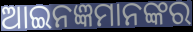
ଆଇନଜ୍ଞମାନଙ୍କର